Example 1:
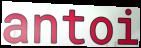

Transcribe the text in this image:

antoi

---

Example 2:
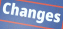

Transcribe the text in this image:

Changes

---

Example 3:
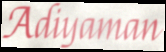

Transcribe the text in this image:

Adiyaman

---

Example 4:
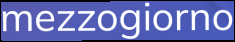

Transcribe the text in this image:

mezzogiorno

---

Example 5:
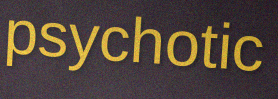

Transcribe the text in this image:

psychotic